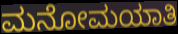
ಮನೋಮಯಾತಿ